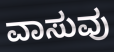
ವಾಸುವು